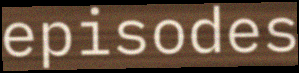
episodes